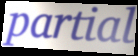
partial